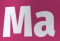
Ma